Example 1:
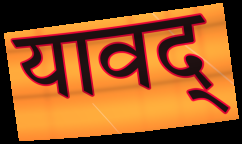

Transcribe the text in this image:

यावद्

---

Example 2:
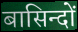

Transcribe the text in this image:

बासिन्दों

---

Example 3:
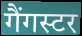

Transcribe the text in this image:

गैंगस्‍टर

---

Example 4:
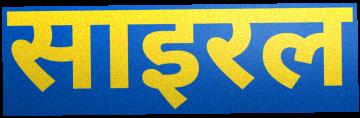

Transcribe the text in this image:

साइरल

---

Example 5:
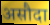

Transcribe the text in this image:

असौदा